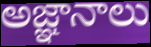
అజ్ఞానాలు